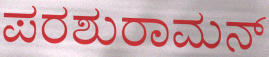
ಪರಶುರಾಮನ್